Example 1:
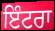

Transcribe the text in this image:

ਇੰਟਰਾ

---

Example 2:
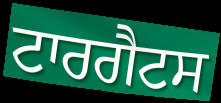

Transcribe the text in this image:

ਟਾਰਗੈਟਸ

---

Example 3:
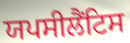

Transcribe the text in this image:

ਯਪਸੀਲੈਂਟਿਸ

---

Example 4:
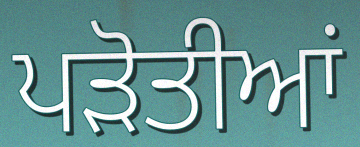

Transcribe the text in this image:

ਪੜੋਤੀਆਂ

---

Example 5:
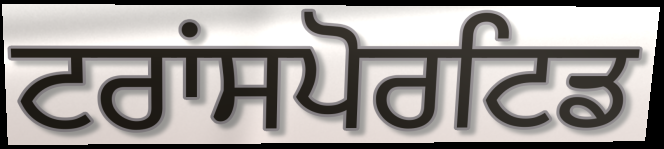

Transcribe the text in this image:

ਟਰਾਂਸਪੋਰਟਿਡ